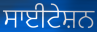
ਸਾਈਟੇਸ਼ਨ